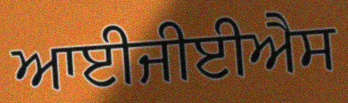
ਆਈਜੀਈਐਸ